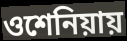
ওশেনিয়ায়